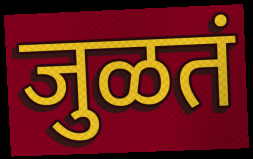
जुळतं